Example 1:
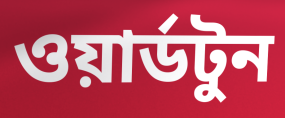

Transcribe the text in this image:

ওয়ার্ডটুন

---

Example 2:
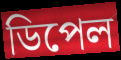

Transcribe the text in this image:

ডিপেল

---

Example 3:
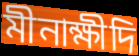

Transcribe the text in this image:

মীনাক্ষীদি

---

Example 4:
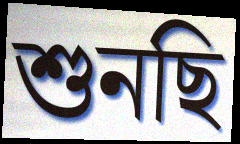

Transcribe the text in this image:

শুনছি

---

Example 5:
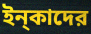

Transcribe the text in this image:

ইন্‌কাদের